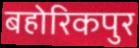
बहोरिकपुर